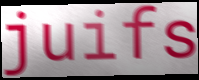
juifs